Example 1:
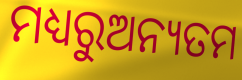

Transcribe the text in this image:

ମଧ୍ୟରୁଅନ୍ୟତମ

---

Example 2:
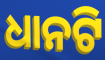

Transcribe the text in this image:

ଧାନଟି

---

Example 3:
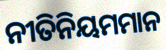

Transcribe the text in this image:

ନୀତିନିୟମମାନ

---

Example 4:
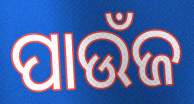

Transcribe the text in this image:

ପାଉଁଜ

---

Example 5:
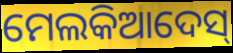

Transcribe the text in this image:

ମେଲକିଆଦେସ୍